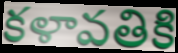
కళావతికి